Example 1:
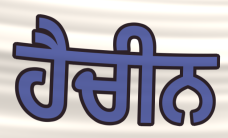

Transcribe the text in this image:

ਹੈਚੀਨ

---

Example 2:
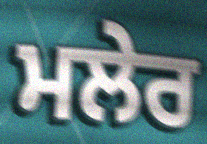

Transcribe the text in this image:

ਮਲੇਰ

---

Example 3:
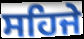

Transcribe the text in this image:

ਸਹਿਜੇ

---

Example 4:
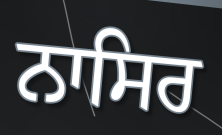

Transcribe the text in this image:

ਨਾਸਿਰ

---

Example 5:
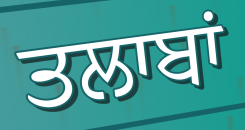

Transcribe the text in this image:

ਤਲਾਬਾਂ